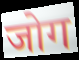
जोग